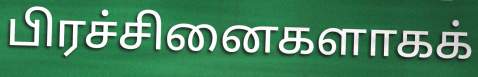
பிரச்சினைகளாகக்